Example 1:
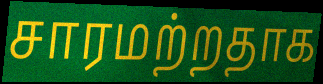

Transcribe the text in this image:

சாரமற்றதாக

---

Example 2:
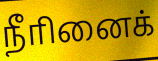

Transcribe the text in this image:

நீரினைக்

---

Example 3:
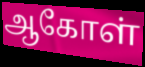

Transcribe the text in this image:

ஆகோள்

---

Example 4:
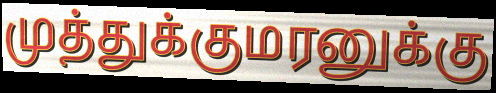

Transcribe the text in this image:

முத்துக்குமரனுக்கு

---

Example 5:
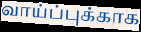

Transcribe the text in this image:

வாய்ப்புக்காக